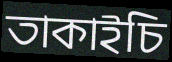
তাকাইচি